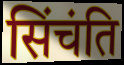
सिंचंति